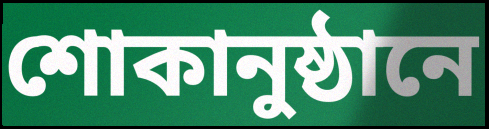
শোকানুষ্ঠানে